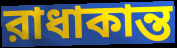
রাধাকান্ত